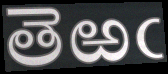
తెఱఁ